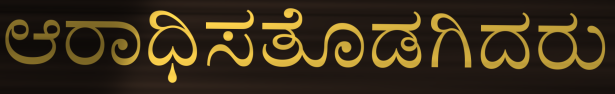
ಆರಾಧಿಸತೊಡಗಿದರು